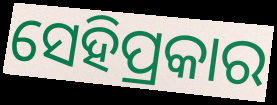
ସେହିପ୍ରକାର